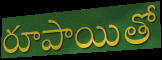
రూపాయితో